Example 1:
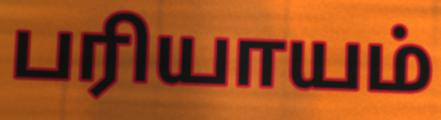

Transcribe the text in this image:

பரியாயம்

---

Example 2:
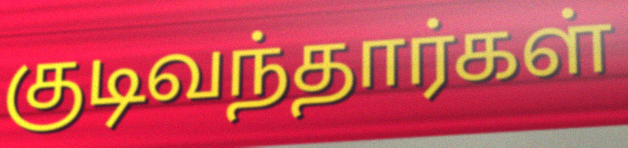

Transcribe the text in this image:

குடிவந்தார்கள்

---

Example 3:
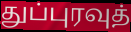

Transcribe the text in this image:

துப்புரவுத்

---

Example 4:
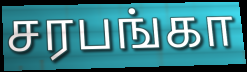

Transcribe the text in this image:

சரபங்கா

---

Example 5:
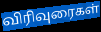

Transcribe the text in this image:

விரிவுரைகள்